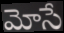
మోసే